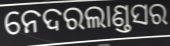
ନେଦରଲାଣ୍ଡସର